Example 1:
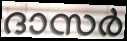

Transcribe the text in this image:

ദാസർ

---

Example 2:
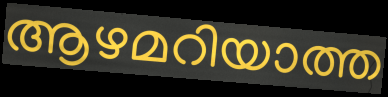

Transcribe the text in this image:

ആഴമറിയാത്ത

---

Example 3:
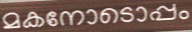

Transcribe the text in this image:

മകനോടൊപ്പം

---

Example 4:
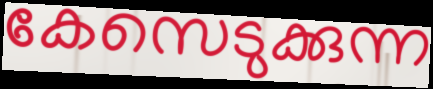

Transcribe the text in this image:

കേസെടുക്കുന്ന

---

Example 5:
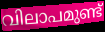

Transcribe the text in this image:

വിലാപമുണ്ട്